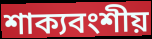
শাক্যবংশীয়